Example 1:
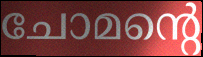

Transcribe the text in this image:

ചോമന്റെ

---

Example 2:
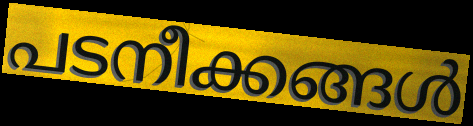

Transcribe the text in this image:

പടനീക്കങ്ങൾ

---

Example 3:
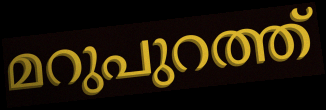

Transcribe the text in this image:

മറുപുറത്ത്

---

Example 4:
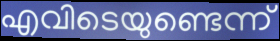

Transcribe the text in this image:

എവിടെയുണ്ടെന്ന്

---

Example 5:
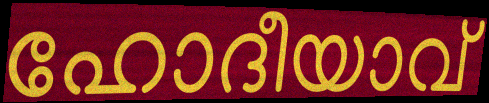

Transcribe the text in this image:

ഹോദീയാവ്